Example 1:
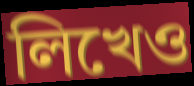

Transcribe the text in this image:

লিখেও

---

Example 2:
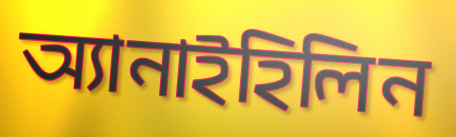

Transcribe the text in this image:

অ্যানাইহিলিন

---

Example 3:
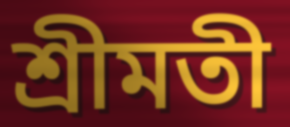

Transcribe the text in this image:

শ্রীমতী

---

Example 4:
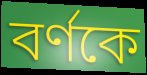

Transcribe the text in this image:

বর্ণকে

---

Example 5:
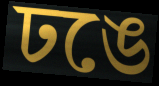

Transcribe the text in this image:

ঢঙে